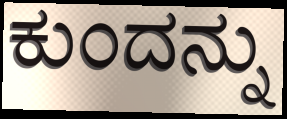
ಕುಂದನ್ನು